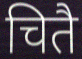
चितै